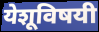
येशूविषयी